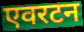
एवरटन